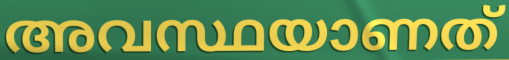
അവസ്ഥയാണത്